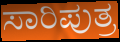
ಸಾರಿಪುತ್ರ